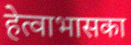
हेत्वाभासका